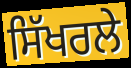
ਸਿੱਖਰਲੇ